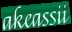
akeassii